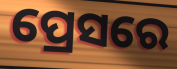
ପ୍ରେସରେ